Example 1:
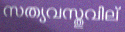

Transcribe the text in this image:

സത്യവസ്തുവില്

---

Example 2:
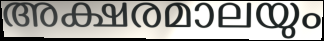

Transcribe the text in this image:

അക്ഷരമാലയും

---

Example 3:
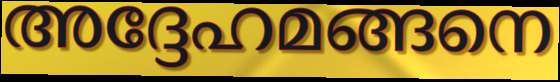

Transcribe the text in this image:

അദ്ദേഹമങ്ങനെ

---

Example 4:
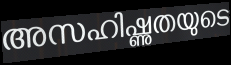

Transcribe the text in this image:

അസഹിഷ്ണുതയുടെ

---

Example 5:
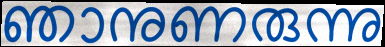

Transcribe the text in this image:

ഞാനുണരുന്നു